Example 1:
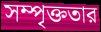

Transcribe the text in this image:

সম্পৃক্ততার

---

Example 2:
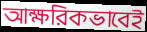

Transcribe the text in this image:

আক্ষরিকভাবেই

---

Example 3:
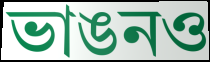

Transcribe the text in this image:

ভাঙনও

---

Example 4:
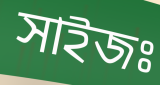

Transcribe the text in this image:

সাইজঃ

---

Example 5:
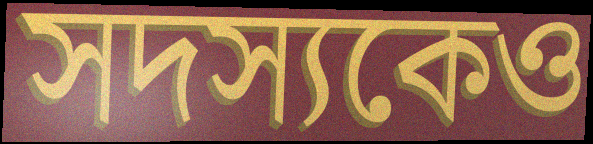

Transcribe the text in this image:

সদস্যকেও